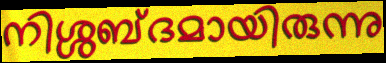
നിശ്ശബ്ദമായിരുന്നു